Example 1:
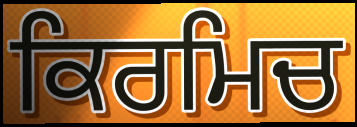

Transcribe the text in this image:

ਕਿਰਮਿਚ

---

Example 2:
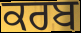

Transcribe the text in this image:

ਕਰਬ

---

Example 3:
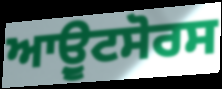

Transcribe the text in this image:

ਆਉੂਟਸੋਰਸ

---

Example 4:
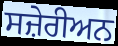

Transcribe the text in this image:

ਸਜ਼ੇਰੀਅਨ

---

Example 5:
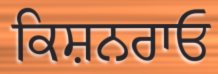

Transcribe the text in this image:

ਕਿਸ਼ਨਰਾਓ